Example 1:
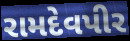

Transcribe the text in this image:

રામદેવપીર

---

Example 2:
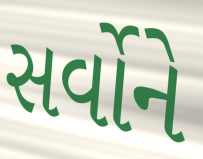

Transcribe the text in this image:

સર્વોને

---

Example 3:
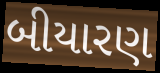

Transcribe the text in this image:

બીયારણ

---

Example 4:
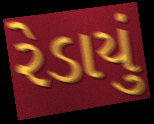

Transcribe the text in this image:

રેડાયું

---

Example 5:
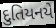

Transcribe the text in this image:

દુતિયનયે